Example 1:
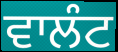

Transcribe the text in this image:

ਵਾਲੰਟ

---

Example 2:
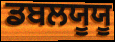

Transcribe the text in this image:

ਡਬਲਯੂਯੂ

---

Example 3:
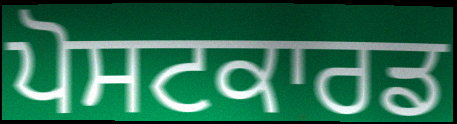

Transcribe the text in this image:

ਪੋਸਟਕਾਰਡ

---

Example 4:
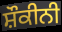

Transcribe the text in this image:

ਸ਼ੌਕੀਨੀ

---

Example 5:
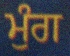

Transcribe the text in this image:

ਮੁੰਗ